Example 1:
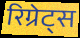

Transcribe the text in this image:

रिग्रेट्स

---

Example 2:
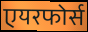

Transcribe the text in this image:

एयरफोर्स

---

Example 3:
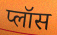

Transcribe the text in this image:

प्लॉस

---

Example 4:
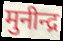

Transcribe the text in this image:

मुनीन्द्र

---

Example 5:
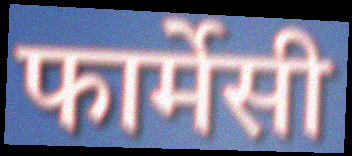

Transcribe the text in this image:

फार्मेसी